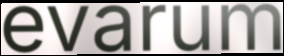
evarum